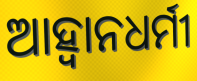
ଆହ୍ବାନଧର୍ମୀ